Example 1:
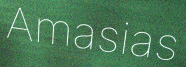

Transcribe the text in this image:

Amasias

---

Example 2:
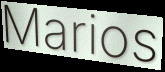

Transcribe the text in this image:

Marios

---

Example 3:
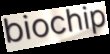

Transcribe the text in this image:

biochip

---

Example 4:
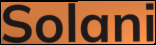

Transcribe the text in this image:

Solani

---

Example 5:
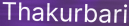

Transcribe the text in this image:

Thakurbari